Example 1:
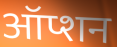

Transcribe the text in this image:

ऑप्‍शन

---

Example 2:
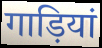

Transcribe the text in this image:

गाड़ियां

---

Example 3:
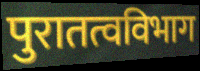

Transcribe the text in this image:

पुरातत्वविभाग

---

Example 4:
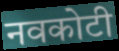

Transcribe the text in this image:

नवकोटी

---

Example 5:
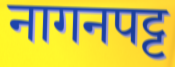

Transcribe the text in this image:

नागनपट्ट